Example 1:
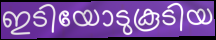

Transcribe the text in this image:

ഇടിയോടുകൂടിയ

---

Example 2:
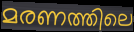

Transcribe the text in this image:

മരണത്തിലെ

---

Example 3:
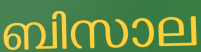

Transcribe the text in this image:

ബിസാല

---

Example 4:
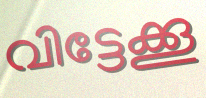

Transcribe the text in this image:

വിട്ടേക്കൂ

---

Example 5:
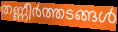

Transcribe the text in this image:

തണ്ണീർത്തടങ്ങൾ